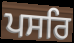
ਪਸਰਿ